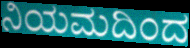
ನಿಯಮದಿಂದ